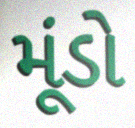
મૂંડો